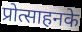
प्रोत्साहनके